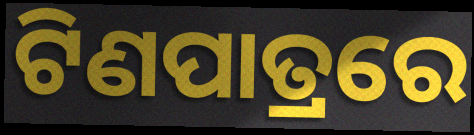
ଟିଣପାତ୍ରରେ